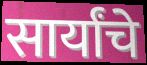
सार्यांचे